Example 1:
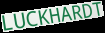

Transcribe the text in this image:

LUCKHARDT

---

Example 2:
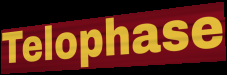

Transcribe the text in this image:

Telophase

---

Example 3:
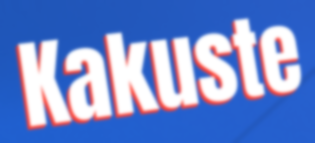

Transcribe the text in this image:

Kakuste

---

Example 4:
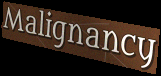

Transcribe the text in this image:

Malignancy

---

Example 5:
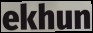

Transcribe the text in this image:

ekhun